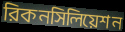
রিকনসিলিয়েশন